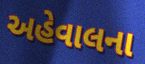
અહેવાલના